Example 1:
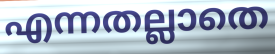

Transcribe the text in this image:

എന്നതല്ലാതെ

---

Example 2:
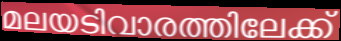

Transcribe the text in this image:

മലയടിവാരത്തിലേക്ക്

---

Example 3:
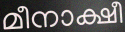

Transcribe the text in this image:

മീനാക്ഷീ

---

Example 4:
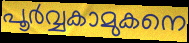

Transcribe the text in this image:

പൂർവ്വകാമുകനെ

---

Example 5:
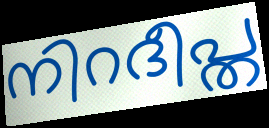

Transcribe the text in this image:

നിറദീപ്ത